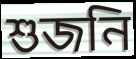
শুজনি